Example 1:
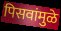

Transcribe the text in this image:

पिसवांमुळे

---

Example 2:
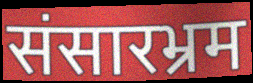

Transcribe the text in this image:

संसारभ्रम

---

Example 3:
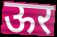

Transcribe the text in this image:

ऊर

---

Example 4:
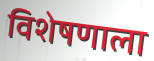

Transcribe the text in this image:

विशेषणाला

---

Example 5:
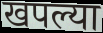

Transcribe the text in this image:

खपल्या